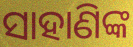
ସାହାଣିଙ୍କ